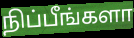
நிப்பீங்களா